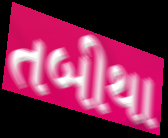
તબીથા